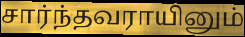
சார்ந்தவராயினும்